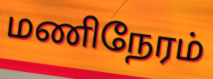
மணிநேரம்